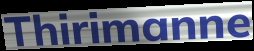
Thirimanne